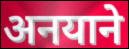
अनयाने